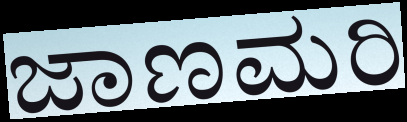
ಜಾಣಮರಿ